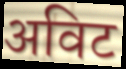
अविट